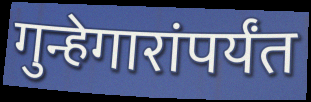
गुन्हेगारांपर्यंत